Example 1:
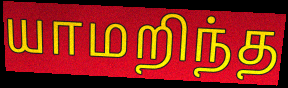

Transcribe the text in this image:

யாமறிந்த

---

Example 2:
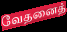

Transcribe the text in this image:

வேதனைத்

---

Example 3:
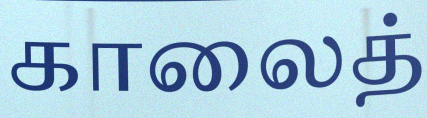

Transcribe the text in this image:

காலைத்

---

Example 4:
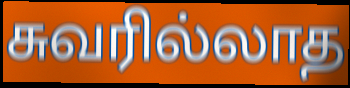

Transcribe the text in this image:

சுவரில்லாத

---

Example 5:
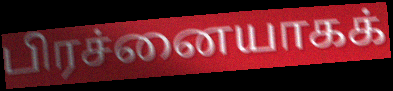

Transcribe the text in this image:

பிரச்னையாகக்